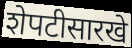
शेपटीसारखे